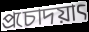
প্রচোদয়াৎ